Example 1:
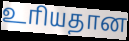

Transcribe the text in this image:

உரியதான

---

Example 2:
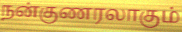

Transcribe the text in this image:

நன்குணரலாகும்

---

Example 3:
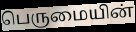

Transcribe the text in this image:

பெருமையின்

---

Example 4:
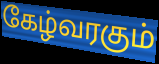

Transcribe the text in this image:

கேழ்வரகும்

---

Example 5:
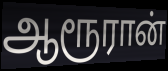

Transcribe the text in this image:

ஆரூரான்